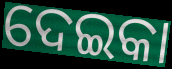
ଦେଇକା